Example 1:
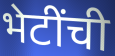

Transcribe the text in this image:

भेटींची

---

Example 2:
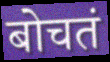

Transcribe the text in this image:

बोचतं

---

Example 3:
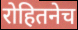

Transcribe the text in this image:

रोहितनेच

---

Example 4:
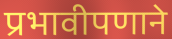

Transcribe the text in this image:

प्रभावीपणाने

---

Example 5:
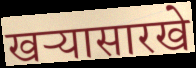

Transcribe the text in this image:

खऱ्यासारखे